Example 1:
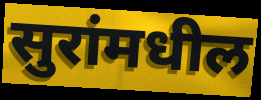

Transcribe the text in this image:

सुरांमधील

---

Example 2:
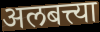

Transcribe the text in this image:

अलबत्त्या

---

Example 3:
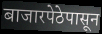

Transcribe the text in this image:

बाजारपेठेपासून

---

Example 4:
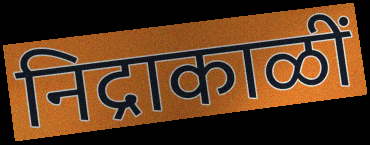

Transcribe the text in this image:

निद्राकाळीं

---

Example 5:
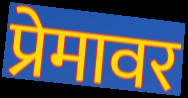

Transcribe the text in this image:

प्रेमावर